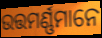
ଉତ୍ତମର୍ଣ୍ଣମାନେ